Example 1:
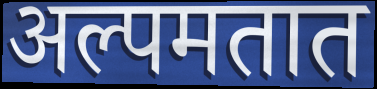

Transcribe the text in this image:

अल्पमतात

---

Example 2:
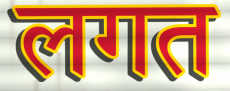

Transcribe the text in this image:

लगत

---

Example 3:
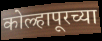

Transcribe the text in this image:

कोल्हापूरच्या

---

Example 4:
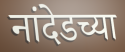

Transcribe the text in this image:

नांदेडच्या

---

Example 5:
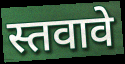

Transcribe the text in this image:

स्तवावे